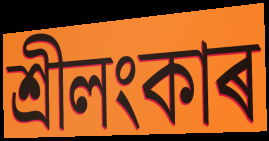
শ্ৰীলংকাৰ